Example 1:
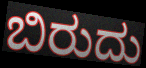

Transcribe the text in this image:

ಬಿರುದು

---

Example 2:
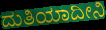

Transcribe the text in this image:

ದುತಿಯಾದೀನಿ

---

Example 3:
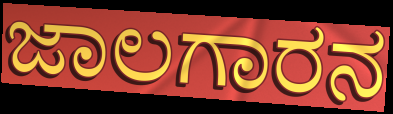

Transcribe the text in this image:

ಜಾಲಗಾರನ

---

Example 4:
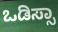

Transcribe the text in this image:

ಒಡಿಸ್ಸಾ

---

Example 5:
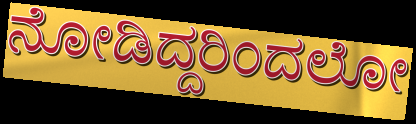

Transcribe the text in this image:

ನೋಡಿದ್ದರಿಂದಲೋ